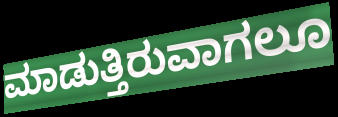
ಮಾಡುತ್ತಿರುವಾಗಲೂ